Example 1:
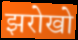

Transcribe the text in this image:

झरोखो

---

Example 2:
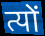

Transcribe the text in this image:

त्यों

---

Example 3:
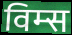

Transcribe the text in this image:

विम्स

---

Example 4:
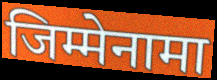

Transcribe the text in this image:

जिम्मेनामा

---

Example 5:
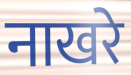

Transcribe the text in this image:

नाखरे